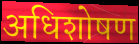
अधिशोषण